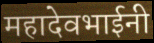
महादेवभाईनी